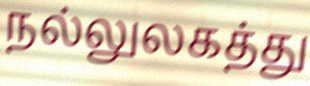
நல்லுலகத்து